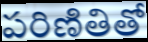
పరిణితితో